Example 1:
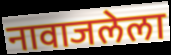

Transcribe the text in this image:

नावाजलेला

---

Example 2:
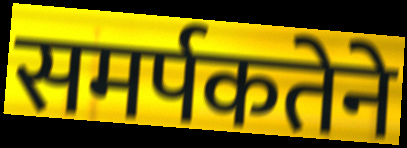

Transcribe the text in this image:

समर्पकतेने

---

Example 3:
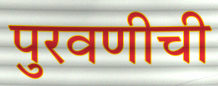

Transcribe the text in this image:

पुरवणीची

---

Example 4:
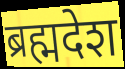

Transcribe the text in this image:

ब्रह्मदेश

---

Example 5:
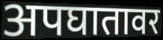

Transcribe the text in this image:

अपघातावर